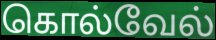
கொல்வேல்